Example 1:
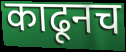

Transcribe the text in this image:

काढूनच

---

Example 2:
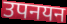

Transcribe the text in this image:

उपनयन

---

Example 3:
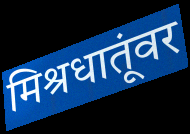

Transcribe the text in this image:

मिश्रधातूंवर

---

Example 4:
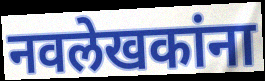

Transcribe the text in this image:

नवलेखकांना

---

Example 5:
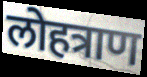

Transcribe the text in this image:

लोहत्राण